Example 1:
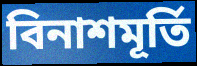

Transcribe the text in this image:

বিনাশমূর্তি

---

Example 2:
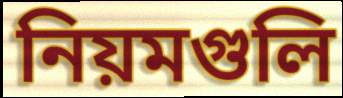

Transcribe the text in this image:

নিয়মগুলি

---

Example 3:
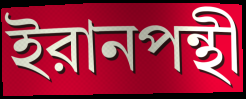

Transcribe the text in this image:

ইরানপন্থী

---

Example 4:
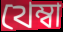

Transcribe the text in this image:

থেম্বা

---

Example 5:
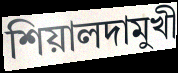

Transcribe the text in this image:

শিয়ালদামুখী